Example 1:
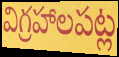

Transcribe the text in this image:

విగ్రహాలపట్ల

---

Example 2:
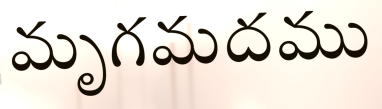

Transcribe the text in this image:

మృగమదము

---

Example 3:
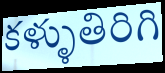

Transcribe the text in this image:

కళ్ళుతిరిగి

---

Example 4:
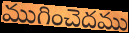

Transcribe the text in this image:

ముగించెదము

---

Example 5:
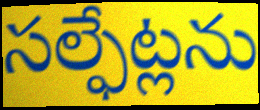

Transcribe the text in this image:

సల్ఫేట్లను